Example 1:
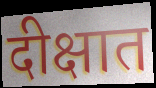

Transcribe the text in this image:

दीक्षात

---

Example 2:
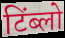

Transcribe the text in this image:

टिंब्लो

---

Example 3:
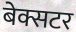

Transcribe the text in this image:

बेक्सटर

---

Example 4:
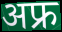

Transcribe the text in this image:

अफ्र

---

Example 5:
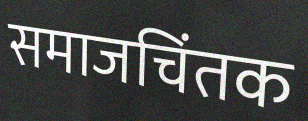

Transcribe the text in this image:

समाजचिंतक